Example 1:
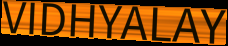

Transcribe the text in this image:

VIDHYALAY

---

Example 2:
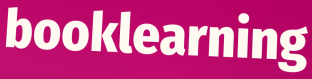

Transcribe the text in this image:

booklearning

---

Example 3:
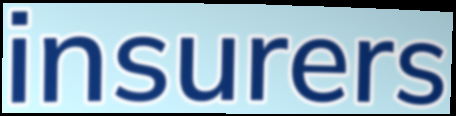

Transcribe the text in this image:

insurers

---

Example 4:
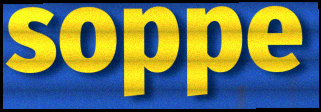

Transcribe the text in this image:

soppe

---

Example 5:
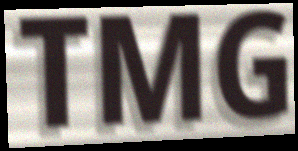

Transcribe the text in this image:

TMG